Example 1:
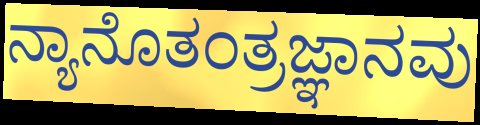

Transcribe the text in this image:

ನ್ಯಾನೊತಂತ್ರಜ್ಞಾನವು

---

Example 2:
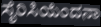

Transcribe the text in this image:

ಸೈರಿಸಿಯೆಂದನಾ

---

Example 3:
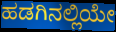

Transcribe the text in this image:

ಹಡಗಿನಲ್ಲಿಯೇ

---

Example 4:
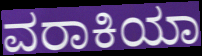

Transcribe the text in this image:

ವರಾಕಿಯಾ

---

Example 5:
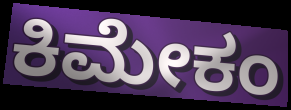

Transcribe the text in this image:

ಕಿಮೇಕಂ